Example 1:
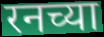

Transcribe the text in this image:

रनच्या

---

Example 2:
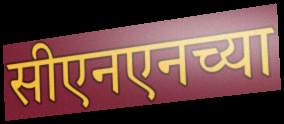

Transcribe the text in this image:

सीएनएनच्या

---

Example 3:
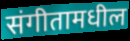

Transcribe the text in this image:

संगीतामधील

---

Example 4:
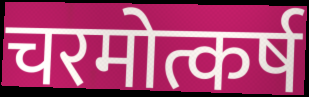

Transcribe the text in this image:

चरमोत्कर्ष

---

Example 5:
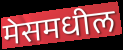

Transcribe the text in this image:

मेसमधील